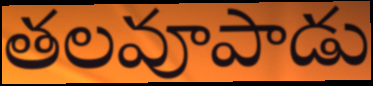
తలవూపాడు